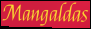
Mangaldas